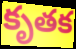
కృతక